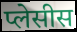
प्लेसीस